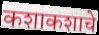
कशाकशाचे